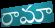
రామా